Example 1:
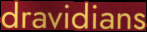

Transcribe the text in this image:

dravidians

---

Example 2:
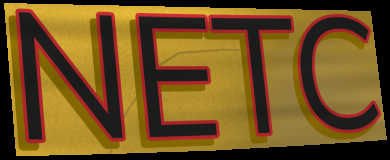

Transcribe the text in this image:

NETC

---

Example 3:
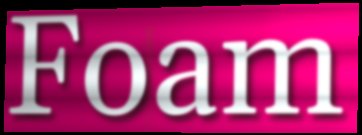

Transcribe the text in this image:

Foam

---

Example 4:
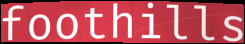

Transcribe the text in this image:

foothills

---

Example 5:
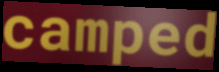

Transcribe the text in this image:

camped